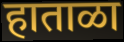
हाताळा